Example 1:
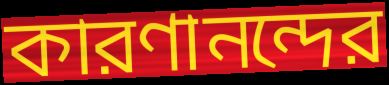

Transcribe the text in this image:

কারণানন্দের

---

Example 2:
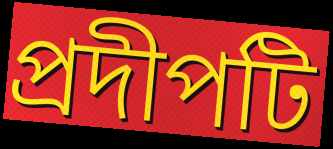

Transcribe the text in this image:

প্রদীপটি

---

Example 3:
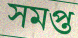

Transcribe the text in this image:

সমপ্ত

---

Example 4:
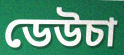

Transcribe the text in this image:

ডেউচা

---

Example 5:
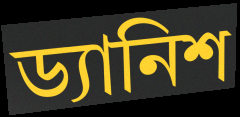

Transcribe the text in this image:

ড্যানিশ